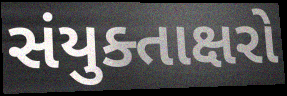
સંયુક્તાક્ષરો